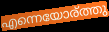
എന്നെയോര്ത്തു